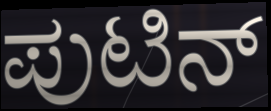
ಪುಟಿನ್